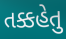
તક્કહેતુ